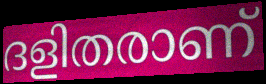
ദളിതരാണ്